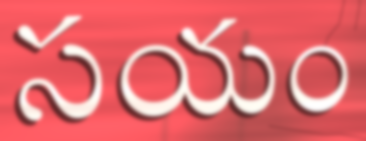
సయం